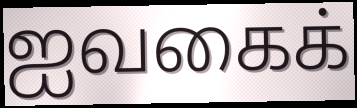
ஐவகைக்